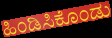
ಹಿಂಡಿಸಿಕೊಂಡು